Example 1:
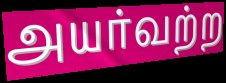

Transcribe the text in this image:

அயர்வற்ற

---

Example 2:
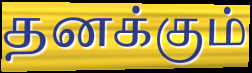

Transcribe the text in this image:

தனக்கும்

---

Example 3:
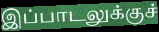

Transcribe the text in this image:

இப்பாடலுக்குச்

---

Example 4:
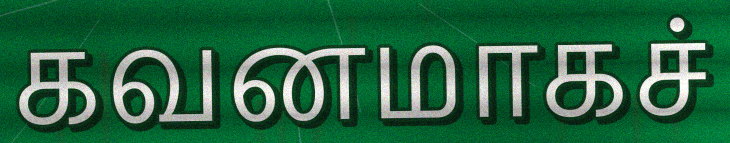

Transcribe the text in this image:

கவனமாகச்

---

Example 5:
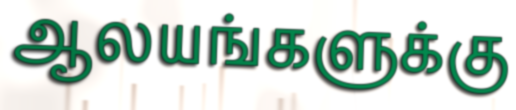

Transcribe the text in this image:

ஆலயங்களுக்கு